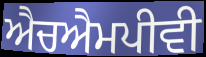
ਐਚਐਮਪੀਵੀ